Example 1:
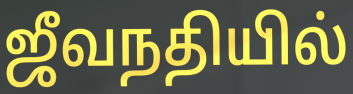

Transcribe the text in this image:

ஜீவநதியில்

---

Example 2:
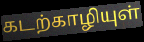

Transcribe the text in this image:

கடற்காழியுள்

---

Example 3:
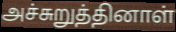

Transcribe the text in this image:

அச்சுறுத்தினாள்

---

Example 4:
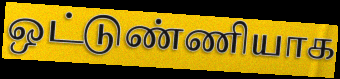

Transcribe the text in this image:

ஒட்டுண்ணியாக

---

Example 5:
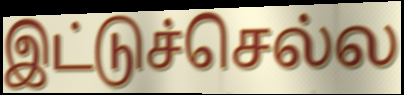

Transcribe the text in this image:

இட்டுச்செல்ல